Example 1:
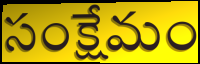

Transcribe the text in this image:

సంక్షేమం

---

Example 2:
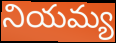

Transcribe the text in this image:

నియమ్య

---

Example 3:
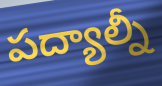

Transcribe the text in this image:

పద్యాల్నీ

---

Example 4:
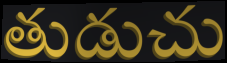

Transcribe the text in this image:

తుడుచు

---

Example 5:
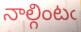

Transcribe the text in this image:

నాల్గింటఁ